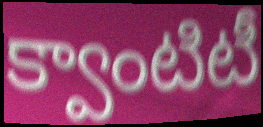
క్వాంటిటీ